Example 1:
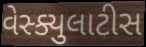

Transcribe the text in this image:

વેસ્ક્યુલાટીસ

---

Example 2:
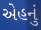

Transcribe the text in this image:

એહનું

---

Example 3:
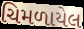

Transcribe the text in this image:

ચિમળાયેલ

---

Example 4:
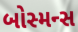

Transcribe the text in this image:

બોસ્મન્સ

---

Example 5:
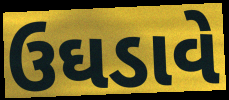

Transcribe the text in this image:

ઉઘડાવે